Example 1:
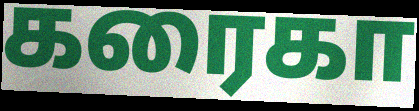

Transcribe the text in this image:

கரைகா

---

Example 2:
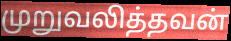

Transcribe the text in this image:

முறுவலித்தவன்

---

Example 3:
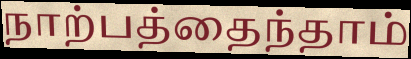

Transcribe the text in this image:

நாற்பத்தைந்தாம்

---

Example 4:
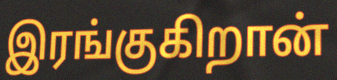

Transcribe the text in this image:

இரங்குகிறான்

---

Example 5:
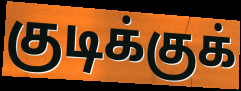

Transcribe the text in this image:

குடிக்குக்